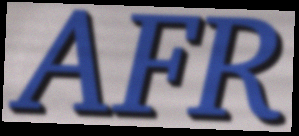
AFR